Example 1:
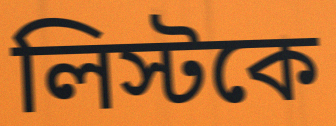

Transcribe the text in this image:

লিস্টকে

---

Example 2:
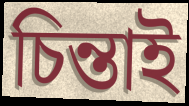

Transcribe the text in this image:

চিন্তাই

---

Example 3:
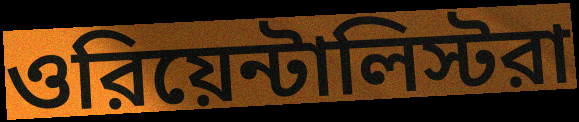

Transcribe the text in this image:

ওরিয়েন্টালিস্টরা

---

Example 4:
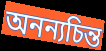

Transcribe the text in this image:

অনন্যচিন্ত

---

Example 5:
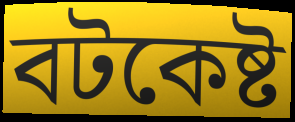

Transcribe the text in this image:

বটকেষ্ট